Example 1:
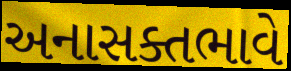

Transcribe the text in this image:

અનાસક્તભાવે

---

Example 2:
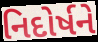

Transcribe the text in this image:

નિદોર્ષને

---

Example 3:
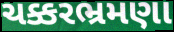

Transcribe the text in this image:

ચક્કરભ્રમણા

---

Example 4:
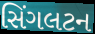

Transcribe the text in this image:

સિંગલટન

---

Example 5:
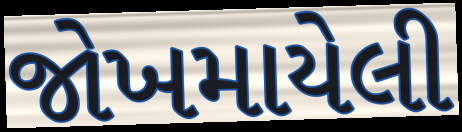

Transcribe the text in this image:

જોખમાયેલી